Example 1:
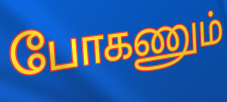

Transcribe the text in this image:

போகணும்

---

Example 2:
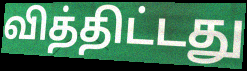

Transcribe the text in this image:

வித்திட்டது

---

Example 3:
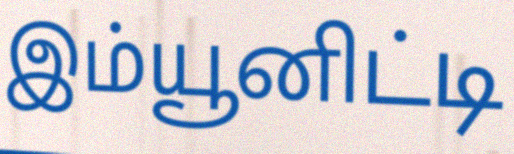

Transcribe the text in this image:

இம்யூனிட்டி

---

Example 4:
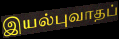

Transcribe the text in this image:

இயல்புவாதப்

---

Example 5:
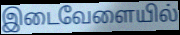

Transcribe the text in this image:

இடைவேளையில்